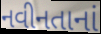
નવીનતાનાં